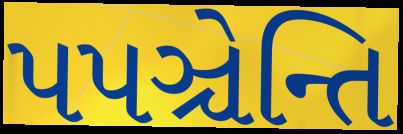
પપઞ્ચેન્તિ